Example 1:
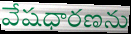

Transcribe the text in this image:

వేషధారణను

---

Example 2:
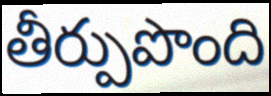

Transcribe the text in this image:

తీర్పుపొంది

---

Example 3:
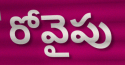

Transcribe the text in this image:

రోవైపు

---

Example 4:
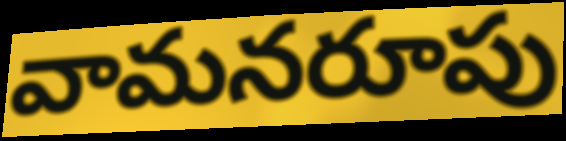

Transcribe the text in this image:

వామనరూపు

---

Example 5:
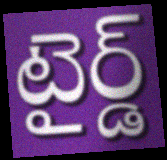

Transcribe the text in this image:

టైర్డ్